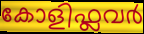
കോളിഫ്ലവർ